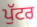
ਪੁੱਟਰ